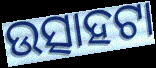
ଉତ୍ସାହଟା